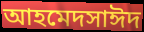
আহমেদসাঈদ